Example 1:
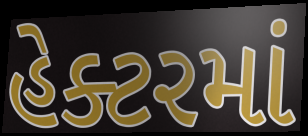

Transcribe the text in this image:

હેક્ટરમાં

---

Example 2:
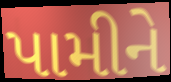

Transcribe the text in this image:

પામીને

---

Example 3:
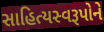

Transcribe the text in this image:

સાહિત્યસ્વરૂપોને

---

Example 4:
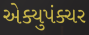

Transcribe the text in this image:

એક્યુપંક્ચર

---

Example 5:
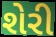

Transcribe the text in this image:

શેરી